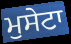
ਮੁਸੇਟਾ